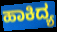
ಹಾಕಿದ್ಯ